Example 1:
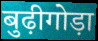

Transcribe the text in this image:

बुढ़ीगोड़ा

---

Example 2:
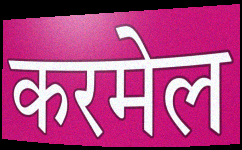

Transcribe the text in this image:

करमेल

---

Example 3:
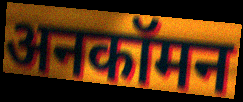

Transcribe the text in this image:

अनकॉमन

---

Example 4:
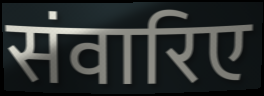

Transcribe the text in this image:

संवारिए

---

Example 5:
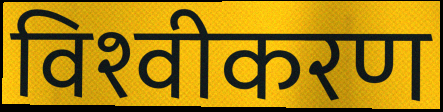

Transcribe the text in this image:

विश्वीकरण